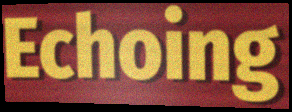
Echoing